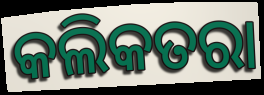
କଲିକତରା